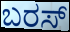
ಬರಸ್